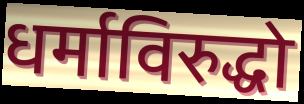
धर्माविरुद्धो